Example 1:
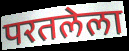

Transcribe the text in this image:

परतलेला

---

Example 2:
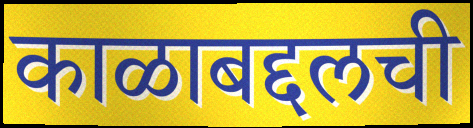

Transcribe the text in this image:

काळाबद्दलची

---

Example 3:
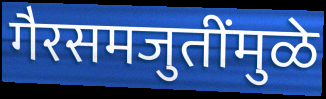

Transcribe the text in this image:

गैरसमजुतींमुळे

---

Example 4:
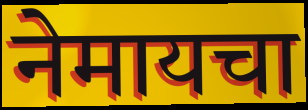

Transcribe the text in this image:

नेमायचा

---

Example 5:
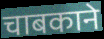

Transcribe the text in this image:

चाबकाने